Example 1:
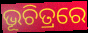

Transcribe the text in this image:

ଭୂଚିତ୍ରରେ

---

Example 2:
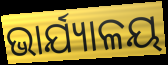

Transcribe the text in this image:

ଭାର୍ଯ୍ୟାଳୟ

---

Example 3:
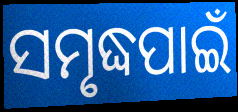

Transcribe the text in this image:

ସମୃଦ୍ଧପାଇଁ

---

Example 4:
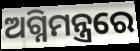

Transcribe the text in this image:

ଅଗ୍ନିମନ୍ତ୍ରରେ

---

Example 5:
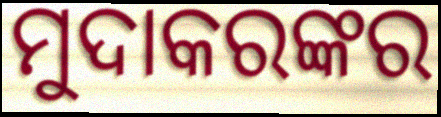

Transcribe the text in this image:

ମୁଦାକରଙ୍କର